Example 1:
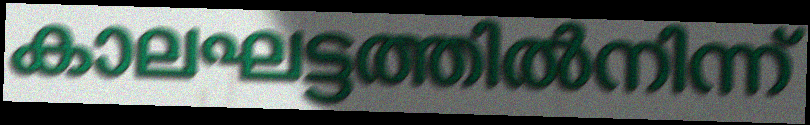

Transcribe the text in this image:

കാലഘട്ടത്തിൽനിന്ന്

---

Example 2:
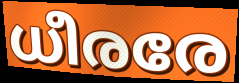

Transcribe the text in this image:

ധീരരേ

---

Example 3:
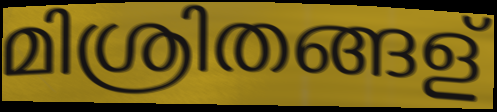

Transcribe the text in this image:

മിശ്രിതങ്ങള്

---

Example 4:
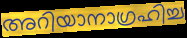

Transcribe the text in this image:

അറിയാനാഗ്രഹിച്ച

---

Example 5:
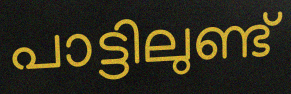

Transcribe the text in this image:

പാട്ടിലുണ്ട്